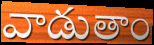
వాడుతాం